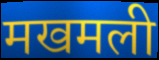
मखमली